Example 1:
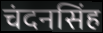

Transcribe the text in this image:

चंदनसिंह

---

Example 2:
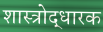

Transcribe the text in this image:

शास्त्रोद्धारक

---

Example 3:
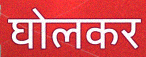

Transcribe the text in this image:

घोलकर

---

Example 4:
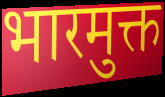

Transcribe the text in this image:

भारमुक्त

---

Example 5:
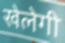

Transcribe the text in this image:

खेलेगी